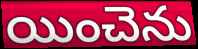
యించెను